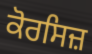
ਕੋਰਸਿਜ਼